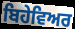
ਬਿਹੇਵਿਅਰ